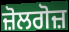
ਜ਼ੋਲਗੋਜ਼